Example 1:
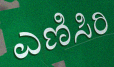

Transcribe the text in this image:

ಎಣಿಸಿರಿ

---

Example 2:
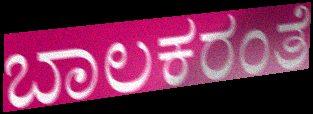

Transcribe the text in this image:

ಬಾಲಕರಂತೆ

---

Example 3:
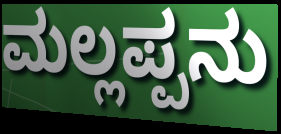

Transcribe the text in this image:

ಮಲ್ಲಪ್ಪನು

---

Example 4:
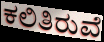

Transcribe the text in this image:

ಕಲಿತಿರುವೆ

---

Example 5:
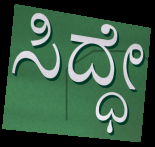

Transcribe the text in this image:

ಸಿದ್ಧೇ